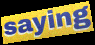
saying